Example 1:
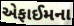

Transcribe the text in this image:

એફાઈમના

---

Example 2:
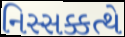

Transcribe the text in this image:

નિસ્સક્કત્થે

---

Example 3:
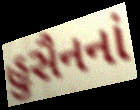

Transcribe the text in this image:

હુસૈનનાં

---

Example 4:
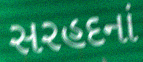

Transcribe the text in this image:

સરહદનાં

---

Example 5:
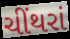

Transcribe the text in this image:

ચીંથરાં